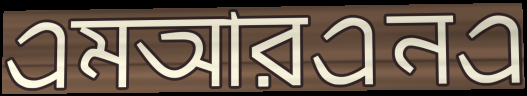
এমআরএনএ